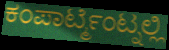
ಕಂಪಾರ್ಟ್ಮೆಂಟ್ನಲ್ಲಿ